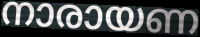
നാരായണ